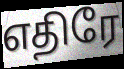
எதிரே